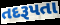
તદરૂપતા